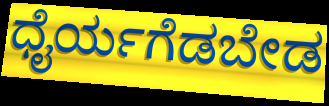
ಧೈರ್ಯಗೆಡಬೇಡ